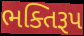
ભક્તિરૂપ